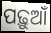
ପଢ଼ୁଆଁ